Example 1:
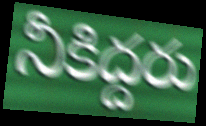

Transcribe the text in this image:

నీకిద్దరు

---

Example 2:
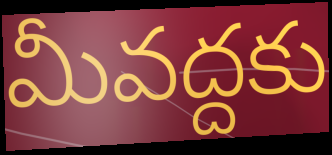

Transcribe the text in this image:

మీవద్దకు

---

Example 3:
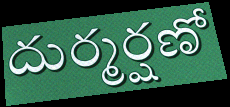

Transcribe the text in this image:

దుర్మర్షణో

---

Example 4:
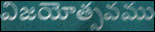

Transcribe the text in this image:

విజయోత్సవము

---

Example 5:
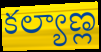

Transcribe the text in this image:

కల్యాణ్ల